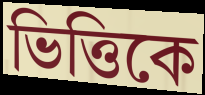
ভিত্তিকে